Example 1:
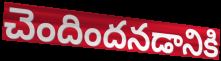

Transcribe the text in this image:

చెందిందనడానికి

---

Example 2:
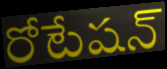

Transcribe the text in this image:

రోటేషన్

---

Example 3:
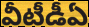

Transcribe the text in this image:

వీటీడీఏ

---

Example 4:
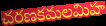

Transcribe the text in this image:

చరణకమలమిహ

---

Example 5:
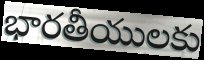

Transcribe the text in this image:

భారతీయులకు